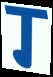
ग्‍